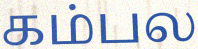
கம்பல